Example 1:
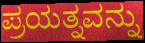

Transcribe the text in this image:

ಪ್ರಯತ್ನವನ್ನು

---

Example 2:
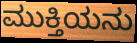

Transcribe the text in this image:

ಮುಕ್ತಿಯನು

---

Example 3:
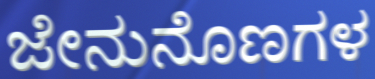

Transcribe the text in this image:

ಜೇನುನೊಣಗಳ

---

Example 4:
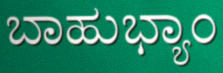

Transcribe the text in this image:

ಬಾಹುಭ್ಯಾಂ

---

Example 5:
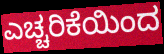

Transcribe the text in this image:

ಎಚ್ಚರಿಕೆಯಿಂದ